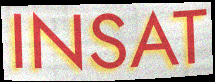
INSAT